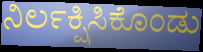
ನಿರ್ಲಕ್ಷಿಸಿಕೊಂಡು